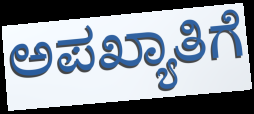
ಅಪಖ್ಯಾತಿಗೆ